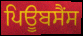
ਪਿਊਬਸੈਂਸ